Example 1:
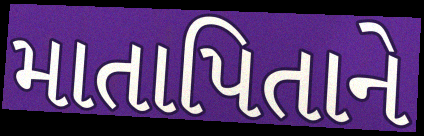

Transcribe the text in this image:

માતાપિતાને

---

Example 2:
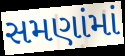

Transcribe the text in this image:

સમણાંમાં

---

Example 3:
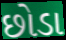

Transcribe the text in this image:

છોડા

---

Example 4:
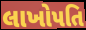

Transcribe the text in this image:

લાખોપતિ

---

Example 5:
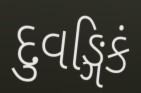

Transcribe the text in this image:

દુવઙ્ગિકં